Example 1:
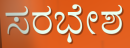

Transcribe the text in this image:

ಸರಭೇಶ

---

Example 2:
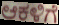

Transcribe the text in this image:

ಆಕಳಿಗೆ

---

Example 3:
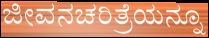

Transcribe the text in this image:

ಜೀವನಚರಿತ್ರೆಯನ್ನೂ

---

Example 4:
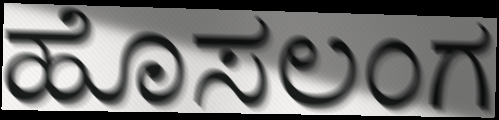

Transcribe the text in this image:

ಹೊಸಲಂಗ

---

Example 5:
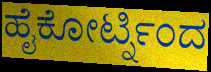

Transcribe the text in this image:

ಹೈಕೋರ್ಟ್ನಿಂದ